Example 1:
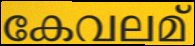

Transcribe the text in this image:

കേവലമ്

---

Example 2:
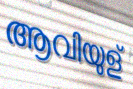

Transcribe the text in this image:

ആവിയുള്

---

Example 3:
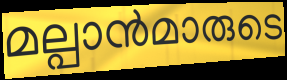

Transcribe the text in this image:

മല്പാൻമാരുടെ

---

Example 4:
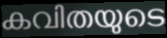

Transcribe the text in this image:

കവിതയുടെ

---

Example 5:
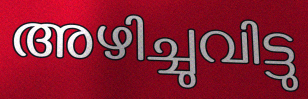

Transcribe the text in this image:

അഴിച്ചുവിട്ടു